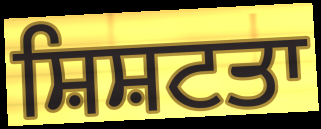
ਸ਼ਿਸ਼ਟਤਾ